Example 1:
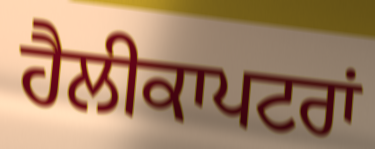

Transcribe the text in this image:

ਹੈਲੀਕਾਪਟਰਾਂ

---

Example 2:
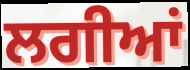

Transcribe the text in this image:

ਲਗੀਆਂ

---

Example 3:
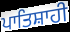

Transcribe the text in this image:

ਪਾਤਿਸ਼ਾਹੀ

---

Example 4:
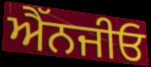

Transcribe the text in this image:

ਐੱਨਜੀਓ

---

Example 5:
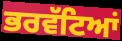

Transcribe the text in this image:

ਭਰਵੱਟਿਆਂ